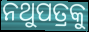
ନଥୁପତ୍ରକୁ